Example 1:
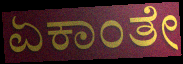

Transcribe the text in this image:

ಏಕಾಂತೇ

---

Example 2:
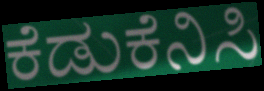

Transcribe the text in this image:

ಕೆಡುಕೆನಿಸಿ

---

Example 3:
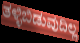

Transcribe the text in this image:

ತಳ್ಳಿಬಿಡುವುದಿಲ್ಲ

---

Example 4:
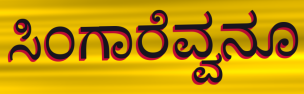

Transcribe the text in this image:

ಸಿಂಗಾರೆವ್ವನೂ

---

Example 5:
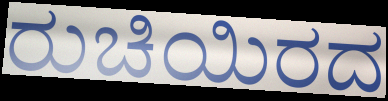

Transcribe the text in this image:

ರುಚಿಯಿರದ